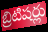
బ్రిటిషర్లు